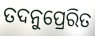
ତଦନୁପ୍ରେରିତ